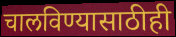
चालविण्यासाठीही